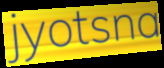
jyotsna